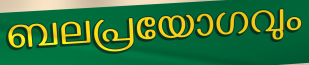
ബലപ്രയോഗവും